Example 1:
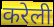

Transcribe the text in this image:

करेली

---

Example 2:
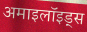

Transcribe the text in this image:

अमाइलॉइड्स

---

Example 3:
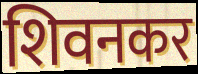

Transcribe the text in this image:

शिवनकर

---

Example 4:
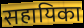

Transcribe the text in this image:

सहायिका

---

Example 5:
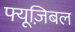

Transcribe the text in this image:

फ्यूज़िबल